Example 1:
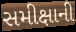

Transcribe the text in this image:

સમીક્ષાની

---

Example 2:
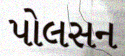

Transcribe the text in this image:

પોલસન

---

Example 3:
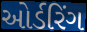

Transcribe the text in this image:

ઓર્ડરિંગ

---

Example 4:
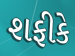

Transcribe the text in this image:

શફીકે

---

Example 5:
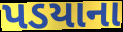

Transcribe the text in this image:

પડયાના